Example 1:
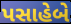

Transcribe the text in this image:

પસાહેબે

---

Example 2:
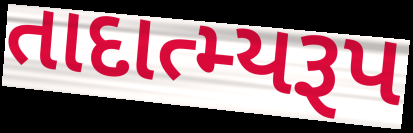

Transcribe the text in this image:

તાદાત્મ્યરૂપ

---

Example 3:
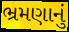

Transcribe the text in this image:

ભ્રમણાનું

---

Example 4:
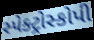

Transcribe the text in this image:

સ્પેક્ટ્રોસ્કોપી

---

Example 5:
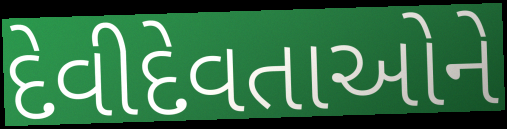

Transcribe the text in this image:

દેવીદેવતાઓને